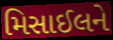
મિસાઈલને